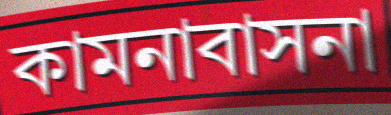
কামনাবাসনা